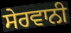
ਸੇਰਵਾਨੀ